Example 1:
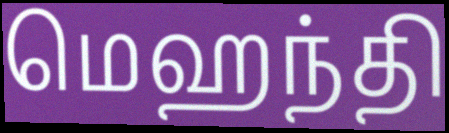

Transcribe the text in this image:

மெஹந்தி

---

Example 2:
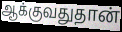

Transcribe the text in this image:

ஆக்குவதுதான்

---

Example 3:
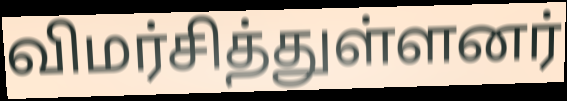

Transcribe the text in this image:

விமர்சித்துள்ளனர்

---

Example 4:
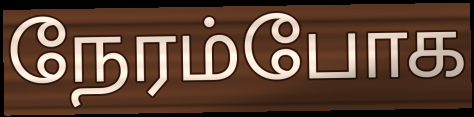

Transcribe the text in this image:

நேரம்போக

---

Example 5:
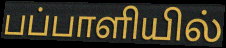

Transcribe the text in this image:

பப்பாளியில்